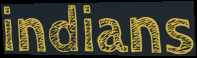
indians